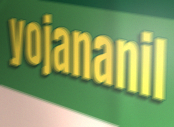
yojananil